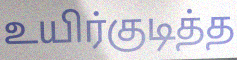
உயிர்குடித்த